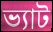
ভ্যাট